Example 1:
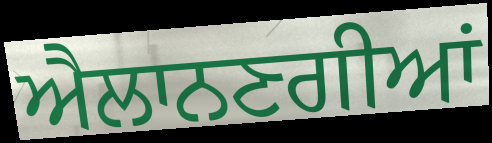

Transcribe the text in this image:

ਐਲਾਨਣਗੀਆਂ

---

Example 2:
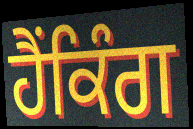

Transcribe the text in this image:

ਹੈਂਕਿੰਗ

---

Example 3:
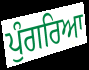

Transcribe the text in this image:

ਪੁੰਗਰਿਆ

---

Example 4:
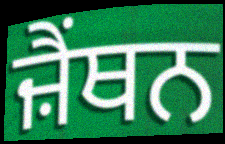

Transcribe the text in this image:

ਜ਼ੈਂਥਨ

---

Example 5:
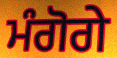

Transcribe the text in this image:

ਮੰਗੋਗੇ